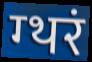
ग्थरं